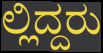
ಲ್ಲಿದ್ದರು